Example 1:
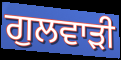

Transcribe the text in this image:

ਗੁਲਵਾੜੀ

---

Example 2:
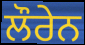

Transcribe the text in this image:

ਲੌਰੇਨ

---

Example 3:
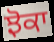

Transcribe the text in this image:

ਝੋਕਾ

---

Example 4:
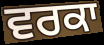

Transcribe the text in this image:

ਵਰਕਾ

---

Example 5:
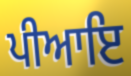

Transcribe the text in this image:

ਪੀਆਇ